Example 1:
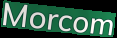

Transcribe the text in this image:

Morcom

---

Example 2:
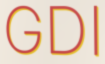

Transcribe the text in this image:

GDI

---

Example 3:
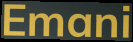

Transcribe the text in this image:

Emani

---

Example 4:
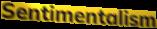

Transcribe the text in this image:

Sentimentalism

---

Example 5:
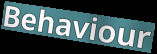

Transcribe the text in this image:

Behaviour